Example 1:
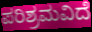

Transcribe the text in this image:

ಪರಿಶ್ರಮವಿದೆ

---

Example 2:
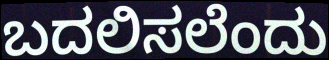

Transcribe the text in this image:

ಬದಲಿಸಲೆಂದು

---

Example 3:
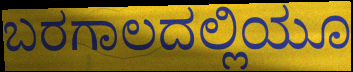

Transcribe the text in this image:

ಬರಗಾಲದಲ್ಲಿಯೂ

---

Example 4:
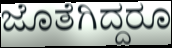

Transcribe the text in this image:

ಜೊತೆಗಿದ್ದರೂ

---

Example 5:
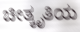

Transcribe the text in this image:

ಚೀತ್ಕೃತಿಯ